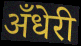
अँधेरी